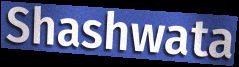
Shashwata